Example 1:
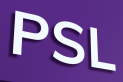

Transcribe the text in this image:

PSL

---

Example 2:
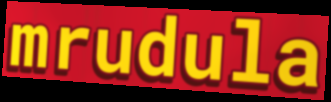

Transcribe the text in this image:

mrudula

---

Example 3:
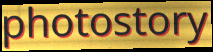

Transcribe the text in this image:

photostory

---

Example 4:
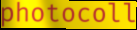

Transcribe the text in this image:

photocoll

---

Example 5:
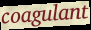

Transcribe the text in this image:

coagulant